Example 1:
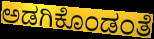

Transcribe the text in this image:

ಅಡಗಿಕೊಂಡಂತೆ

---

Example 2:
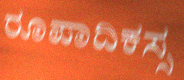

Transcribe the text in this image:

ರೂಪಾದಿಕಸ್ಸ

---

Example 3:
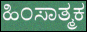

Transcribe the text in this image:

ಹಿಂಸಾತ್ಮಕ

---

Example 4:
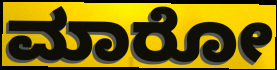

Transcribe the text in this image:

ಮಾರೋ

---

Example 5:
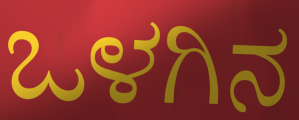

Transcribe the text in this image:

ಒಳಗಿನ